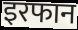
इरफान